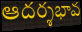
ఆదర్శభావ